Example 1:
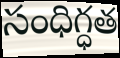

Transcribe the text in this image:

సంధిగ్ధత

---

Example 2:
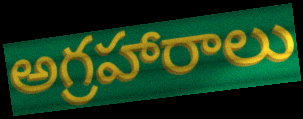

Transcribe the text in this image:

అగ్రహారాలు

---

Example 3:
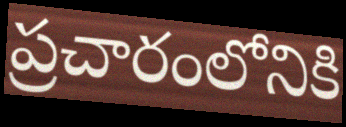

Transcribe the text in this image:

ప్రచారంలోనికి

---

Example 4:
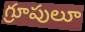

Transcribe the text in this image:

గ్రూపులూ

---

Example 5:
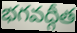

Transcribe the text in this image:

భగవద్గీత